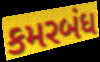
કમરબંધ